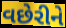
વછેરીને